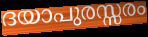
ദയാപുരസ്സരം